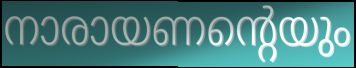
നാരായണന്റെയും